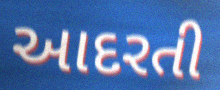
આદરતી